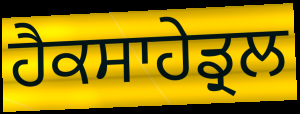
ਹੈਕਸਾਹੇਡ੍ਰਲ